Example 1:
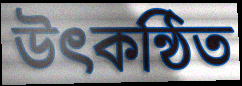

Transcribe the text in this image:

উৎকন্ঠিত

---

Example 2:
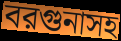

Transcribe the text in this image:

বরগুনাসহ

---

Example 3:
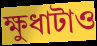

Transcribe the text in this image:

ক্ষুধাটাও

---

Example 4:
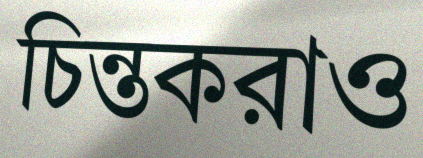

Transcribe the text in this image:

চিন্তকরাও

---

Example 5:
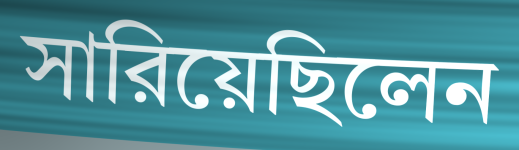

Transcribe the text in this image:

সারিয়েছিলেন